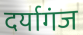
दर्यागंज